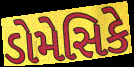
ડોમેસિકે